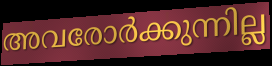
അവരോർക്കുന്നില്ല